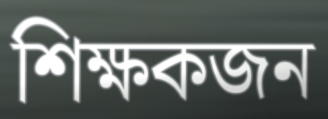
শিক্ষকজন